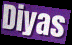
Diyas